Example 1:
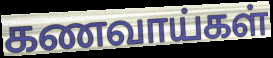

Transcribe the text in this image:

கணவாய்கள்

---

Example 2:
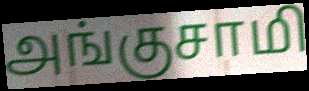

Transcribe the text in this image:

அங்குசாமி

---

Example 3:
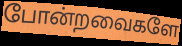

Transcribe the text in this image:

போன்றவைகளே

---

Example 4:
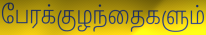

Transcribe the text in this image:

பேரக்குழந்தைகளும்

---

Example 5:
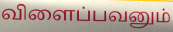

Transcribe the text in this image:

விளைப்பவனும்